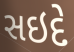
સઇદે